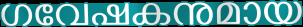
ഗവേഷകനുമായ